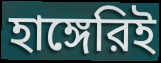
হাঙ্গেরিই